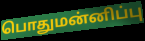
பொதுமன்னிப்பு